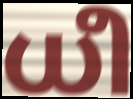
ധീ